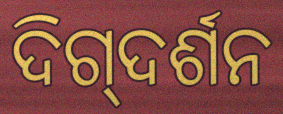
ଦିଗ୍‍ଦର୍ଶନ